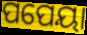
ପପେୟା